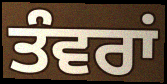
ਤੰਵਰਾਂ